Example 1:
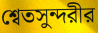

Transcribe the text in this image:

শ্বেতসুন্দরীর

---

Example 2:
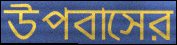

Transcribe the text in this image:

উপবাসের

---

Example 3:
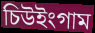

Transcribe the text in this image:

চিউইংগাম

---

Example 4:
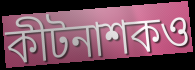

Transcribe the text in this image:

কীটনাশকও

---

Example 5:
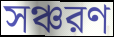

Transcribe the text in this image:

সঞ্চরণ